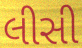
લીસી